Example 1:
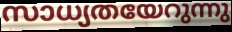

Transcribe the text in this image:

സാധ്യതയേറുന്നു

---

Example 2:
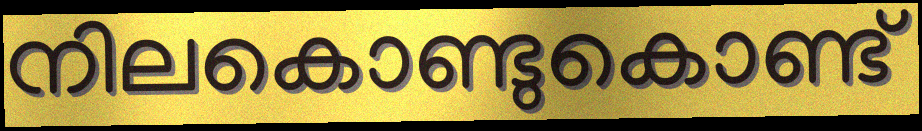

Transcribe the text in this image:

നിലകൊണ്ടുകൊണ്ട്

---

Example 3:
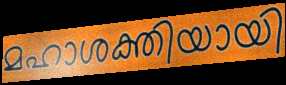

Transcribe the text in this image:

മഹാശക്തിയായി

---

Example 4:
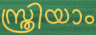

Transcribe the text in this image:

സ്ത്രിയാം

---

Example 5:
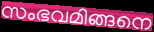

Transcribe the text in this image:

സംഭവമിങ്ങനെ